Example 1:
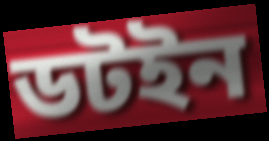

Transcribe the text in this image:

ডটইন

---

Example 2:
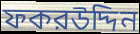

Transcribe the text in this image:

ফকরউদ্দিন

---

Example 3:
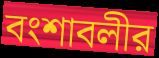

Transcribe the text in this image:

বংশাবলীর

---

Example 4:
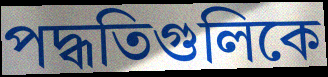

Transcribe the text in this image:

পদ্ধতিগুলিকে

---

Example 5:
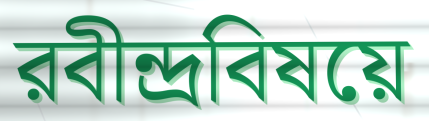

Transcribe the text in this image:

রবীন্দ্রবিষয়ে